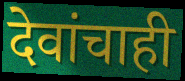
देवांचाही